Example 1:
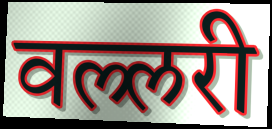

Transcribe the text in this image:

वल्लरी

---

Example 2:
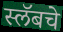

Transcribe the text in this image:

स्लॅबचे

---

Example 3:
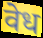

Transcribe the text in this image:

वेध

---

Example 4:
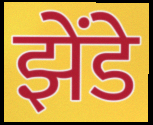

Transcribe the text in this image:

झेंडे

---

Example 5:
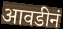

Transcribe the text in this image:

आवडीनं